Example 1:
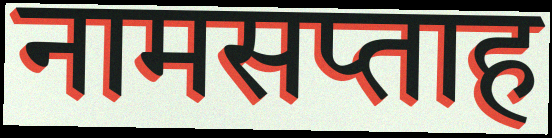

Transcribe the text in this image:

नामसप्ताह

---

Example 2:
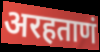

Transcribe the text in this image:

अरहताणं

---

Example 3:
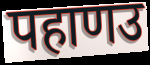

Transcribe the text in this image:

पहाणउ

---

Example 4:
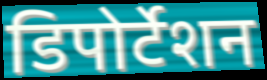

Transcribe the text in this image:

डिपोर्टेशन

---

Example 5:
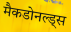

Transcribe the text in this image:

मैकडोनल्ड्स